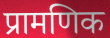
प्रामणिक